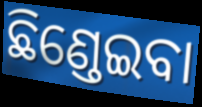
ଛିଣ୍ଡେଇବା